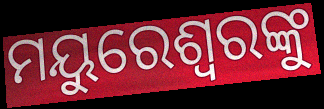
ମୟୁରେଶ୍ବରଙ୍କୁ